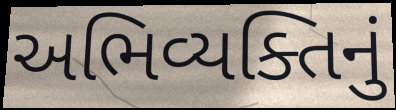
અભિવ્યક્તિનું